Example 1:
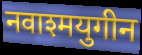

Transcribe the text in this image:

नवाश्मयुगीन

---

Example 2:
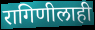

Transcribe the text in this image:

रागिणीलाही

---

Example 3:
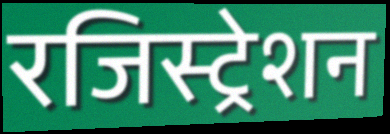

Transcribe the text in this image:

रजिस्ट्रेशन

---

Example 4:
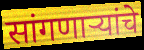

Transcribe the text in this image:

सांगणार्‍यांचे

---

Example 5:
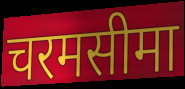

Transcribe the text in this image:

चरमसीमा